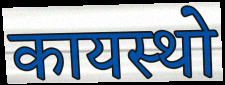
कायस्थो